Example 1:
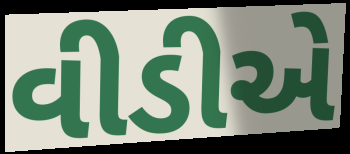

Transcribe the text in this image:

વીડીએ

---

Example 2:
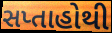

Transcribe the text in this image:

સપ્તાહોથી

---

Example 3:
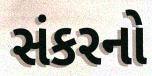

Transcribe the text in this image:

સંકરનો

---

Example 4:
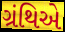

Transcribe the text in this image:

ગ્રંથિએ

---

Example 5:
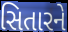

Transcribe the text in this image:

સિતારને